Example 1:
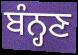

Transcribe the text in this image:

ਬੰਨ੍ਹਣ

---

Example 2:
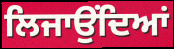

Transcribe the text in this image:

ਲਿਜਾਉਂਦਿਆਂ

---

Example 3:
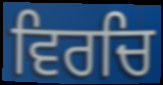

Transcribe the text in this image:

ਵਿਰਚਿ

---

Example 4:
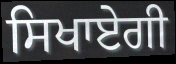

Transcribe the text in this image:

ਸਿਖਾਏਗੀ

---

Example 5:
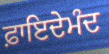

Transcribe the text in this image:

ਫ਼ਾਇਦੇਮੰਦ